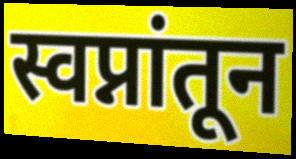
स्वप्नांतून